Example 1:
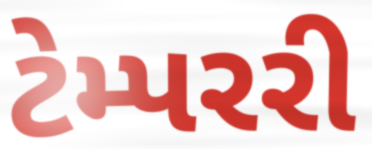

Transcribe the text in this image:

ટેમ્પરરી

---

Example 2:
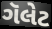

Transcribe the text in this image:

ગૅલેટ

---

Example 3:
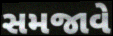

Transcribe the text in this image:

સમજાવે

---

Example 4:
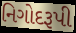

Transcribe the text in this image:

નિગોદરૂપી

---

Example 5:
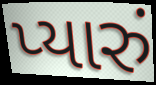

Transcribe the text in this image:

પ્યારું